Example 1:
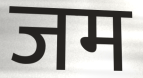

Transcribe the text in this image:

जम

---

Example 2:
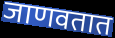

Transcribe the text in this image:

जाणवतात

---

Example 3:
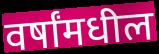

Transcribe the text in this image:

वर्षांमधील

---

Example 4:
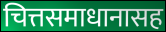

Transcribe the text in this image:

चित्तसमाधानासह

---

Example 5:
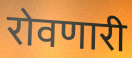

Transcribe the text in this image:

रोवणारी